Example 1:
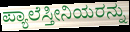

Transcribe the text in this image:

ಪ್ಯಾಲೆಸ್ತೀನಿಯರನ್ನು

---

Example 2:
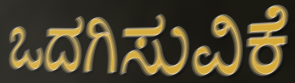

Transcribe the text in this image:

ಒದಗಿಸುವಿಕೆ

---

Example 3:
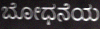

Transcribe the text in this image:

ಬೋಧನೆಯ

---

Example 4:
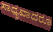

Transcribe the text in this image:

ಸಾಧ್ಯವಾದರೂ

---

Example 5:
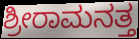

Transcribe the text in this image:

ಶ್ರೀರಾಮನತ್ತ